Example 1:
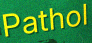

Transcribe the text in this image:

Pathol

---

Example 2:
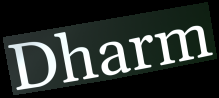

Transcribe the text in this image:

Dharm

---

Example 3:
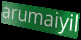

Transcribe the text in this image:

arumaiyil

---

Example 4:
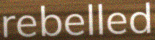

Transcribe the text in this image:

rebelled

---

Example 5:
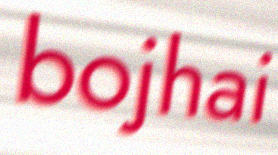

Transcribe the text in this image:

bojhai